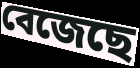
বেজেছে